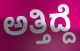
ಅತ್ತಿದ್ದೆ